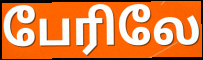
பேரிலே